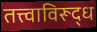
तत्त्वाविरूद्ध